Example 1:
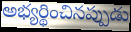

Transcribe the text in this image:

అభ్యర్థించినప్పుడు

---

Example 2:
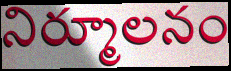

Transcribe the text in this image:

నిర్మూలనం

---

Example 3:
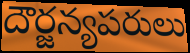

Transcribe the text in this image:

దౌర్జన్యపరులు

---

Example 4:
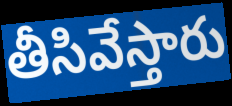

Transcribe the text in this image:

తీసివేస్తారు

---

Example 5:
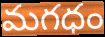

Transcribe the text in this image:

మగధం